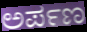
ಅರ್ಪಣ